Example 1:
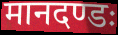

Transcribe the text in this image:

मानदण्डः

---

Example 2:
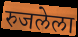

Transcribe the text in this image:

रुजलेला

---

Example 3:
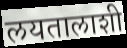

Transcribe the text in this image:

लयतालाशी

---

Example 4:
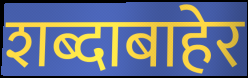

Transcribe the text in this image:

शब्दाबाहेर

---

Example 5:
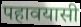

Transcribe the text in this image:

पहावयासी